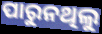
ପାରୁନଥିଲୁ